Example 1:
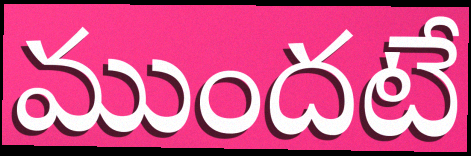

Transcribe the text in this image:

ముందటే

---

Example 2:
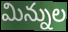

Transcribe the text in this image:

మిన్నుల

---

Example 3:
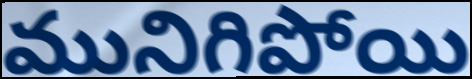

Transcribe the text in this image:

మునిగిపోయి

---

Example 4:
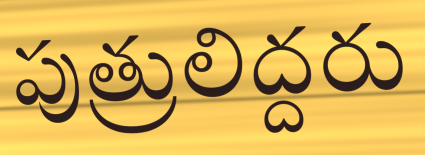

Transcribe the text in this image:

పుత్రులిద్దరు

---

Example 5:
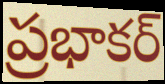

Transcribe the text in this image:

ప్రభాకర్